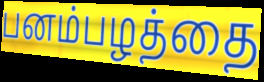
பனம்பழத்தை